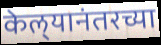
केल्यानंतरच्या